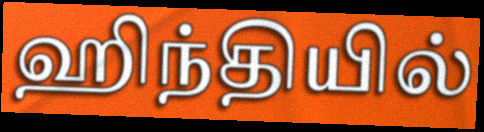
ஹிந்தியில்